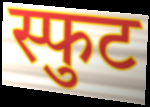
स्फुट